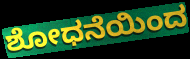
ಶೋಧನೆಯಿಂದ